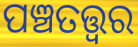
ପଞ୍ଚତତ୍ତ୍ୱର